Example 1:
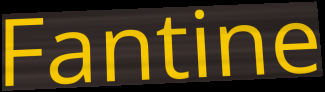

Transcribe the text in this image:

Fantine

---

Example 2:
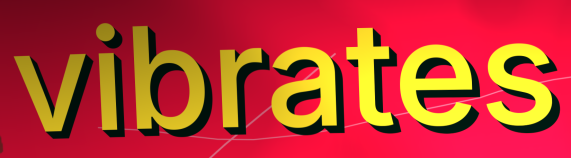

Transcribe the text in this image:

vibrates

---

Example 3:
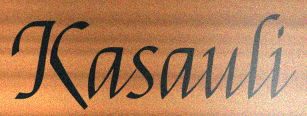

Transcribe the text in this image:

Kasauli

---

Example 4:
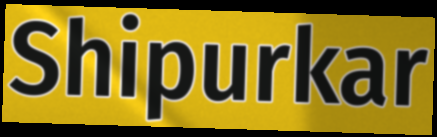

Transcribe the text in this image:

Shipurkar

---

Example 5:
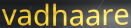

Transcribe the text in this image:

vadhaare